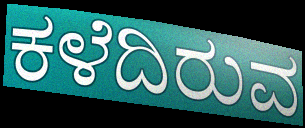
ಕಳೆದಿರುವ